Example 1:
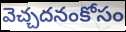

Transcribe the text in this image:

వెచ్చదనంకోసం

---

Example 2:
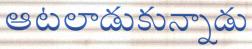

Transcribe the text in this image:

ఆటలాడుకున్నాడు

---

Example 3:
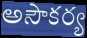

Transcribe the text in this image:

అసౌకర్య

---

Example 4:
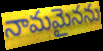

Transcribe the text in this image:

నామమైనను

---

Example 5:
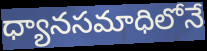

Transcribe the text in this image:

ధ్యానసమాధిలోనే